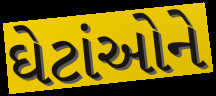
ઘેટાંઓને